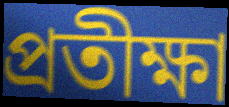
প্রতীক্ষা